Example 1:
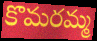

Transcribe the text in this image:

కొమరమ్మ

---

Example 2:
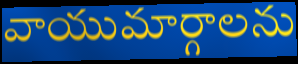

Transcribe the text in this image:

వాయుమార్గాలను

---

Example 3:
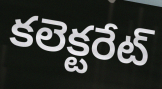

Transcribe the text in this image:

కలెక్టరేట్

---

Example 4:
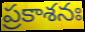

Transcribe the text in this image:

ప్రకాశనః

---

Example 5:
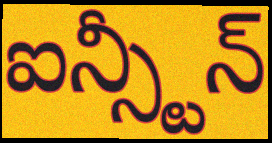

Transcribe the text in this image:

ఐన్స్టీన్